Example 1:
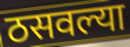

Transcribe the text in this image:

ठसवल्या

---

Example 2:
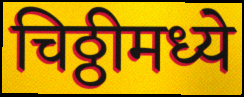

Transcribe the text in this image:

चिठ्ठीमध्ये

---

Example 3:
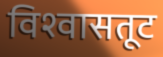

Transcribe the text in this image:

विश्वासतूट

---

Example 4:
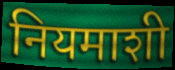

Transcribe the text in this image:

नियमाशी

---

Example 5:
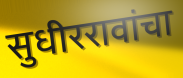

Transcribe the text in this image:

सुधीररावांचा